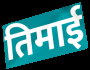
तिमाई